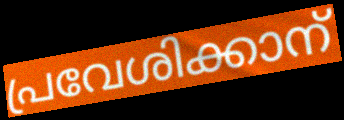
പ്രവേശിക്കാന്